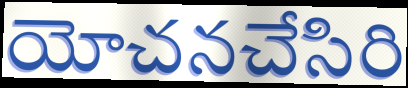
యోచనచేసిరి